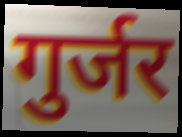
गुर्जर